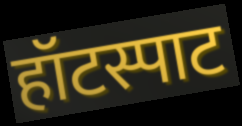
हॉटस्पाट